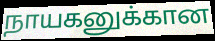
நாயகனுக்கான